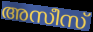
അസീസ്